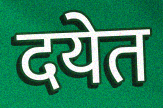
दयेत